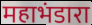
महाभंडारा